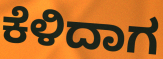
ಕೆಳಿದಾಗ